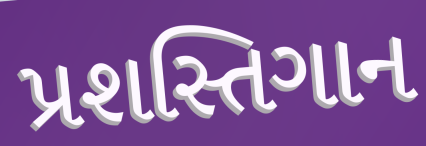
પ્રશસ્તિગાન